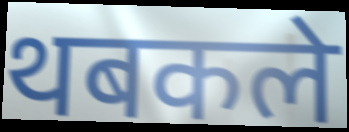
थबकले